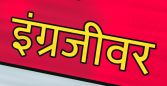
इंग्रजीवर